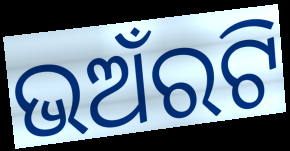
ଭଅଁରଟି